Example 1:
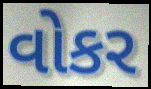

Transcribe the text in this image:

વોકર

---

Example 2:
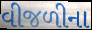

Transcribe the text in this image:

વીજળીના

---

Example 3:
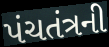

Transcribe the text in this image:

પંચતંત્રની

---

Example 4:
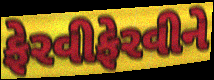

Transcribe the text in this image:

ફેરવીફેરવીને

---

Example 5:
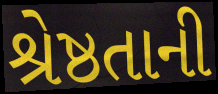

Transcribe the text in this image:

શ્રેષ્ઠતાની